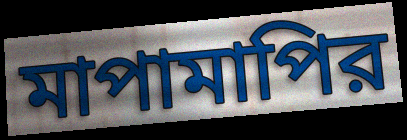
মাপামাপির